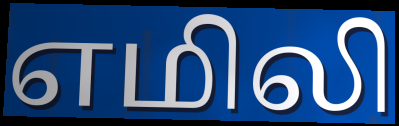
எமிலி